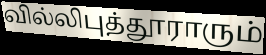
வில்லிபுத்தூராரும்